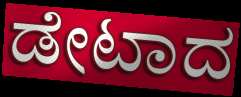
ಡೇಟಾದ